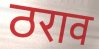
ठराव